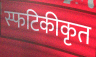
स्फटिकीकृत